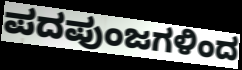
ಪದಪುಂಜಗಳಿಂದ